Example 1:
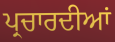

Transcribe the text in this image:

ਪ੍ਰਚਾਰਦੀਆਂ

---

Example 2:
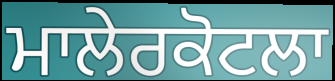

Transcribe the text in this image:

ਮਾਲੇਰਕੋਟਲਾ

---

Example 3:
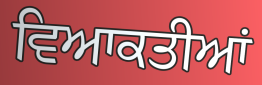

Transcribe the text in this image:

ਵਿਆਕਤੀਆਂ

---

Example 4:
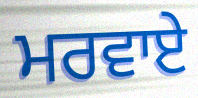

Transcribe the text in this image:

ਮਰਵਾਏ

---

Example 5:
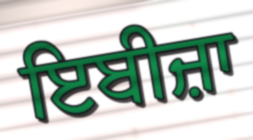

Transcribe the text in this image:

ਇਬੀਜ਼ਾ